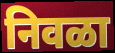
निवळा